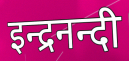
इन्द्रनन्दी